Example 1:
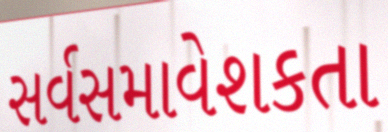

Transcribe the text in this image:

સર્વસમાવેશકતા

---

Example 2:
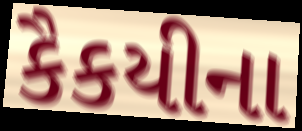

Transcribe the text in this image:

કૈકયીના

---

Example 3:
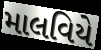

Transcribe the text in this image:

માલવિયે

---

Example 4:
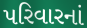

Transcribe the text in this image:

પરિવારનાં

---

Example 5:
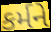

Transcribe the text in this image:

કર્મને